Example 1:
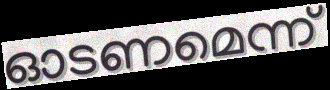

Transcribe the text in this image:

ഓടണമെന്ന്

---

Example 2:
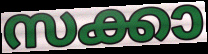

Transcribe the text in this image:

സക്കാ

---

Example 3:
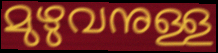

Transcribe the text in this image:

മുഴുവനുള്ള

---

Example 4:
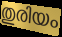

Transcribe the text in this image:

തുരിയം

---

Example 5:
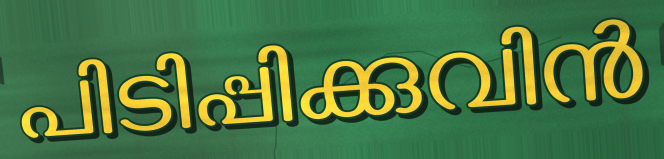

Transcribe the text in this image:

പിടിപ്പിക്കുവിൻ